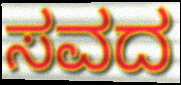
ಸವದ